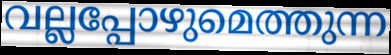
വല്ലപ്പോഴുമെത്തുന്ന